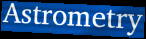
Astrometry